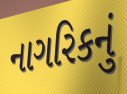
નાગરિકનું